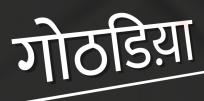
गोठडिय़ा